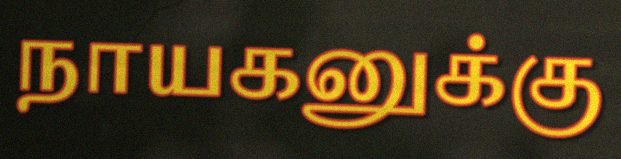
நாயகனுக்கு